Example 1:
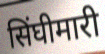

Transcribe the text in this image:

सिंघीमारी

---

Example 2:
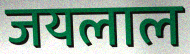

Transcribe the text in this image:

जयलाल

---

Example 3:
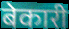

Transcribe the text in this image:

बेकारी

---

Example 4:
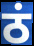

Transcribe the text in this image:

ठं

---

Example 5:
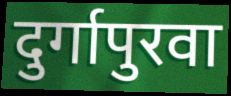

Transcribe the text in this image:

दुर्गापुरवा